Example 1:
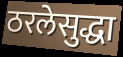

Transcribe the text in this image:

ठरलेसुद्धा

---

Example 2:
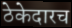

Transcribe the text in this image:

ठेकेदारच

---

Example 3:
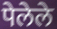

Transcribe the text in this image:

पेलेले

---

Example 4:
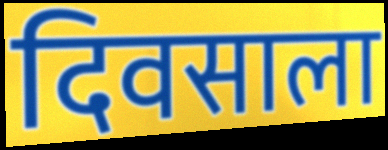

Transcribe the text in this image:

दिवसाला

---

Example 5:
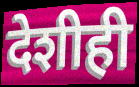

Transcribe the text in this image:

देशीही